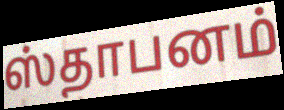
ஸ்தாபனம்